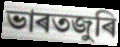
ভাৰতজুৰি